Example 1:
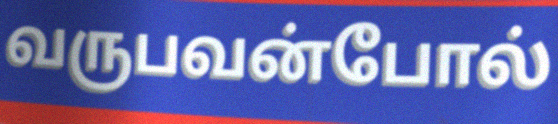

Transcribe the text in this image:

வருபவன்போல்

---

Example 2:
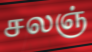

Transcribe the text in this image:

சலஞ்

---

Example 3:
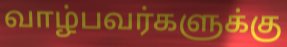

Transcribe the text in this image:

வாழ்பவர்களுக்கு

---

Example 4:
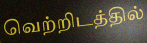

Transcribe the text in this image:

வெற்றிடத்தில்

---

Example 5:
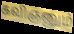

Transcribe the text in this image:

கவிஞனும்